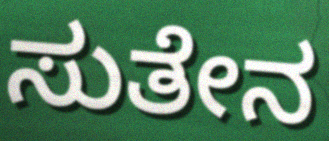
ಸುತೇನ